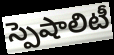
స్పెషాలిటీ